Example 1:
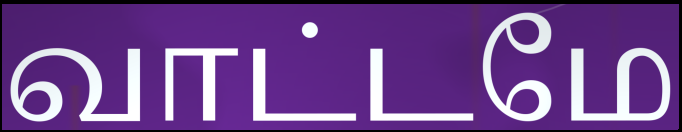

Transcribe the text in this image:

வாட்டமே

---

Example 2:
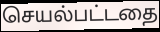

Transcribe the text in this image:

செயல்பட்டதை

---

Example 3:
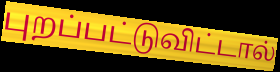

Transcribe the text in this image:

புறப்பட்டுவிட்டால்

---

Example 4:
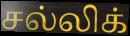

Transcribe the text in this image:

சல்லிக்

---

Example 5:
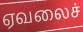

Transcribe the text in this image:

ஏவலைச்